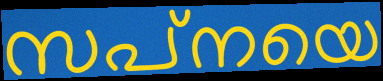
സപ്‌നയെ